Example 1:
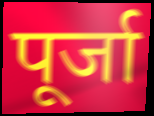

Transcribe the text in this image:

पूर्जा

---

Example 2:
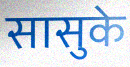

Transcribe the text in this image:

सासुके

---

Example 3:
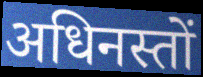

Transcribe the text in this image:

अधिनस्तों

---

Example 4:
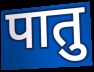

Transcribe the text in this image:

पातु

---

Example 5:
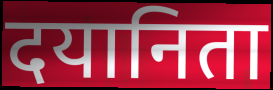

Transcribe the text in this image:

दयानिता